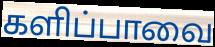
களிப்பாவை